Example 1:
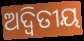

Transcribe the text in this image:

ଅଦ୍ୱିତୀୟ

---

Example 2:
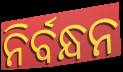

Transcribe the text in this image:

ନିର୍ବନ୍ଧନ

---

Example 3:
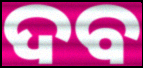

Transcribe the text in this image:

ଦବ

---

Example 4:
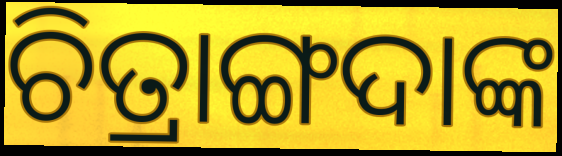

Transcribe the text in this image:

ଚିତ୍ରାଙ୍ଗଦାଙ୍କ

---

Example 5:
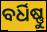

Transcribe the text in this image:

ବର୍ଧିଷ୍ଣୁ